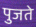
पुजते